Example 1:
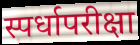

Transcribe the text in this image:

स्पर्धापरीक्षा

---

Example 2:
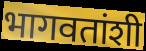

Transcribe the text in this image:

भागवतांशी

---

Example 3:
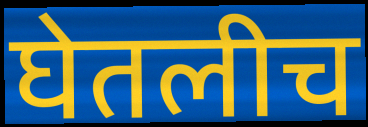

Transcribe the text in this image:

घेतलीच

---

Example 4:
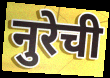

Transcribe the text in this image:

नुरेची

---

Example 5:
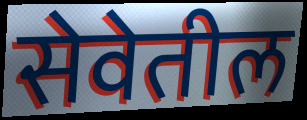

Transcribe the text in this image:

सेवेतील